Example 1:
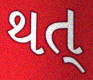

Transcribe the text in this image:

થત્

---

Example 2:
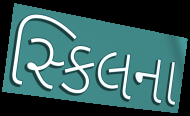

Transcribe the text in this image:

સ્કિલના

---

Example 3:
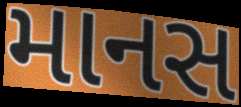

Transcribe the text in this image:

માનસ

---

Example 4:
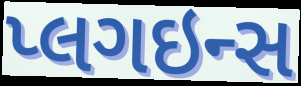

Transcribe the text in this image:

પ્લગઇન્સ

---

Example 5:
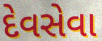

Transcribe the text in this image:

દેવસેવા